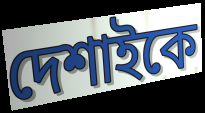
দেশাইকে